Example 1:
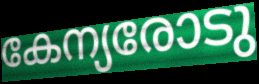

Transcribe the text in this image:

കേന്യരോടു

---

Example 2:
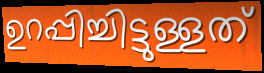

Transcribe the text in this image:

ഉറപ്പിച്ചിട്ടുള്ളത്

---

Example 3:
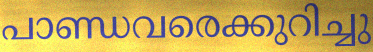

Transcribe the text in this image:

പാണ്ഡവരെക്കുറിച്ചു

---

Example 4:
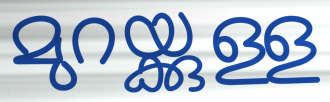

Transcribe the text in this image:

മുറയ്ക്കുള്ള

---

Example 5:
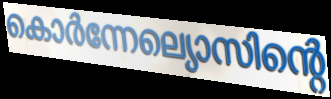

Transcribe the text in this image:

കൊർന്നേല്യൊസിന്റെ